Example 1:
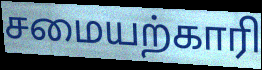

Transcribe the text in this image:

சமையற்காரி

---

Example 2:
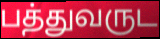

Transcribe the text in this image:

பத்துவருட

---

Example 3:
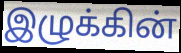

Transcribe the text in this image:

இழுக்கின்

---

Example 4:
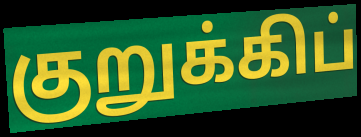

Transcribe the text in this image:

குறுக்கிப்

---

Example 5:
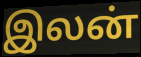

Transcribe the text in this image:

இலன்